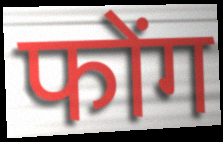
फोंग